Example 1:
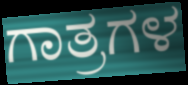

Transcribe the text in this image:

ಗಾತ್ರಗಳ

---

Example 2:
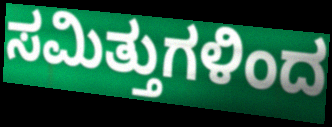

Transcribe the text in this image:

ಸಮಿತ್ತುಗಳಿಂದ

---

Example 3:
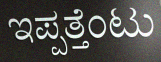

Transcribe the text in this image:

ಇಪ್ಪತ್ತೆಂಟು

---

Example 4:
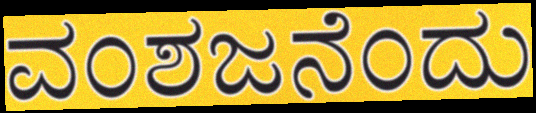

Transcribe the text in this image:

ವಂಶಜನೆಂದು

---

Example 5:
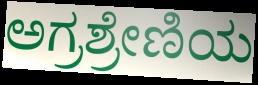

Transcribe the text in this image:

ಅಗ್ರಶ್ರೇಣಿಯ